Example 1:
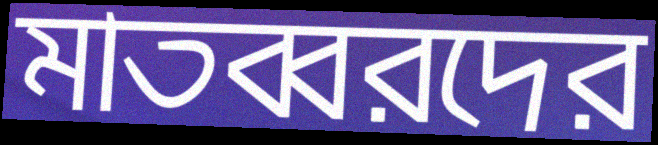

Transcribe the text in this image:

মাতব্বরদের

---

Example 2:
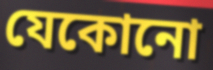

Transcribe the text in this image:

যেকোনো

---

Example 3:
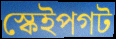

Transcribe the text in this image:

স্কেইপগট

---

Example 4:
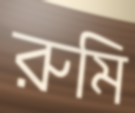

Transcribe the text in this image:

রুমি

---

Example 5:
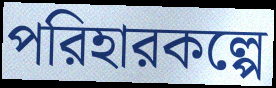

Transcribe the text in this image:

পরিহারকল্পে